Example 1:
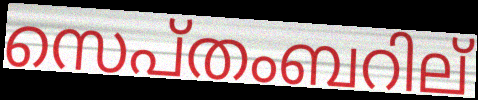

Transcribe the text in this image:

സെപ്തംബറില്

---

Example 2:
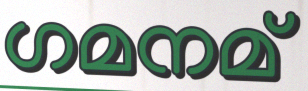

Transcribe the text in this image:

ഗമനമ്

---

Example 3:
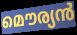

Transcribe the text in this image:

മൌര്യൻ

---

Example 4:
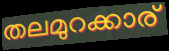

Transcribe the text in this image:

തലമുറക്കാര്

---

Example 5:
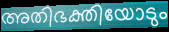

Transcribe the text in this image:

അതിഭക്തിയോടും